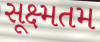
સૂક્ષ્મતમ